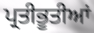
ਪ੍ਰਤੀਭੂਤੀਆਂ